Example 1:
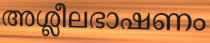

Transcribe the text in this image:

അശ്ലീലഭാഷണം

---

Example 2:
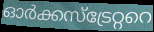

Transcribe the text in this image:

ഓർക്കസ്ട്രേറ്ററെ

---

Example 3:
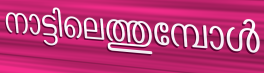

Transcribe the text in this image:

നാട്ടിലെത്തുമ്പോൾ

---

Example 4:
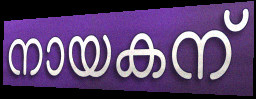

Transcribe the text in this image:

നായകന്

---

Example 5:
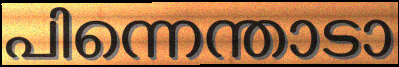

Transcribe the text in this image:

പിന്നെന്താടാ